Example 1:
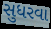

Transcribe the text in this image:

સુધરવા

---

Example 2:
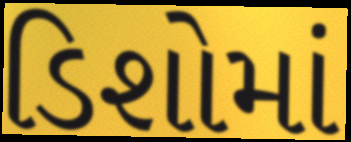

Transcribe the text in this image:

ડિશોમાં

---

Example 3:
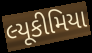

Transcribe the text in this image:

લ્યૂકીમિયા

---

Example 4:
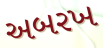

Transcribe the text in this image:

અબરખ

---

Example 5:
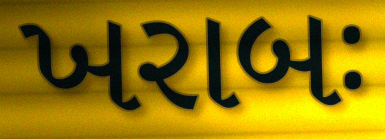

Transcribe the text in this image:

ખરાબઃ